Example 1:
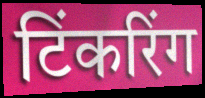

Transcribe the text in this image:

टिंकरिंग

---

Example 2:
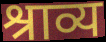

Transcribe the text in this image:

श्राव्य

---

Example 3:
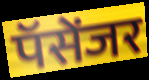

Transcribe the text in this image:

पॅसेंजर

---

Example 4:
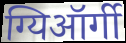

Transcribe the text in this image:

ग्यिऑर्गी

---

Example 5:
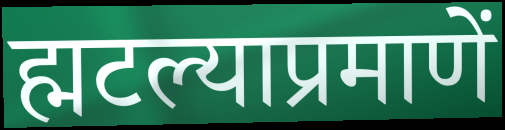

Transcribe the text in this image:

ह्मटल्याप्रमाणें